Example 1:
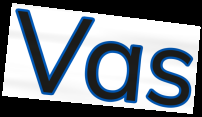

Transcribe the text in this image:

Vas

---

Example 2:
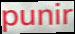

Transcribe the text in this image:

punir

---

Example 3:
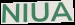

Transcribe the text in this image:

NIUA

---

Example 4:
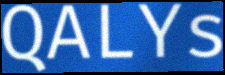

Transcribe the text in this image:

QALYs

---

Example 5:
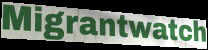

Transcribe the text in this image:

Migrantwatch